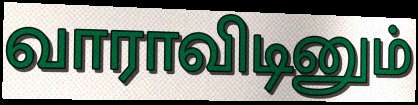
வாராவிடினும்